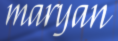
maryan